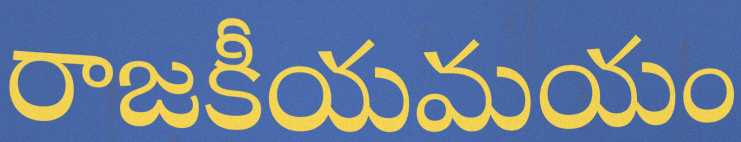
రాజకీయమయం